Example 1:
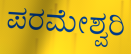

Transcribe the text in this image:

ಪರಮೇಶ್ವರಿ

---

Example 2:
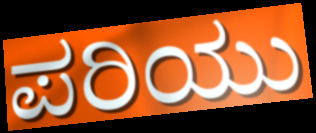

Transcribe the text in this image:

ಪರಿಯು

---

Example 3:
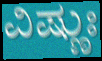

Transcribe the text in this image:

ವಿಷ್ಣುಃ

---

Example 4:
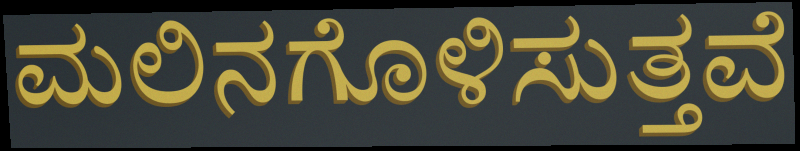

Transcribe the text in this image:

ಮಲಿನಗೊಳಿಸುತ್ತವೆ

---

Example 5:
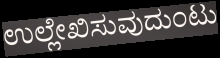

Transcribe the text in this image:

ಉಲ್ಲೇಖಿಸುವುದುಂಟು